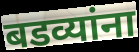
बडव्यांना